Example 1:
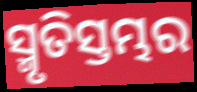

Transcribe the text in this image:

ସ୍ମୃତିସ୍ତମ୍ଭର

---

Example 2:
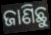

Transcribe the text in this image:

ଜାଣିଛୁ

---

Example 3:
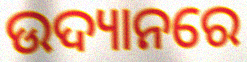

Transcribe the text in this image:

ଉଦ୍ୟାନରେ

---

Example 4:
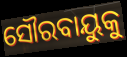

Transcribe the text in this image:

ସୌରବାୟୁକୁ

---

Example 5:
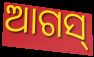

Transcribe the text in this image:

ଆଗସ୍